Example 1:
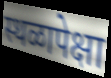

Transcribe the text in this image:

स्थळापेक्षा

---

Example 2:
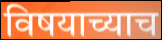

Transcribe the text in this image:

विषयाच्याच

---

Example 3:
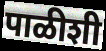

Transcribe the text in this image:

पाळीशी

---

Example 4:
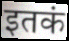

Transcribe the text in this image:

इतकं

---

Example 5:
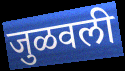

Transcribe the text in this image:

जुळवली